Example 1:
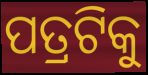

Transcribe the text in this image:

ପତ୍ରଟିକୁ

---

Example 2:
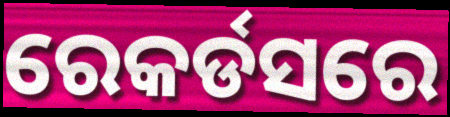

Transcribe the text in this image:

ରେକର୍ଡସରେ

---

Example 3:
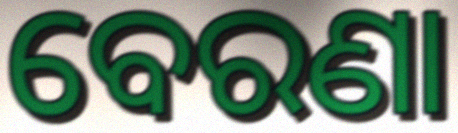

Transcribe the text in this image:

ବେରଣା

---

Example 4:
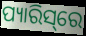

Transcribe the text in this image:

ପ୍ୟାରିସ୍‌ରେ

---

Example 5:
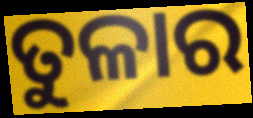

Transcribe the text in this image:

ତୁଳାର